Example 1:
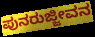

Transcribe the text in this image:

ಪುನರುಜ್ಜೀವನ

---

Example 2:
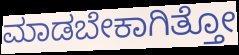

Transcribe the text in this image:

ಮಾಡಬೇಕಾಗಿತ್ತೋ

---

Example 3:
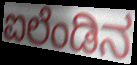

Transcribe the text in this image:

ಐಲೆಂಡಿನ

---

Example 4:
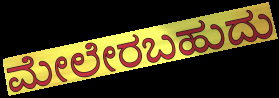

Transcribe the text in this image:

ಮೇಲೇರಬಹುದು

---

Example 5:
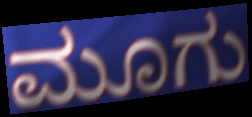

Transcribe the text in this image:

ಮೂಗು